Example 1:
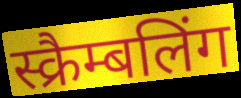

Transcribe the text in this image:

स्क्रैम्बलिंग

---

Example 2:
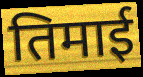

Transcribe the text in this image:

तिमाई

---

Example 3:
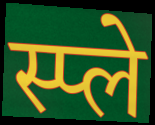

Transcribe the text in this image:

स्प्ले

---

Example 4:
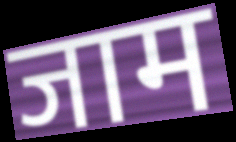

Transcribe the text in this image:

जाम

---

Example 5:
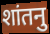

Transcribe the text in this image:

शांतनु